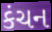
કંચન